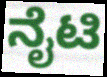
ನೈಟಿ